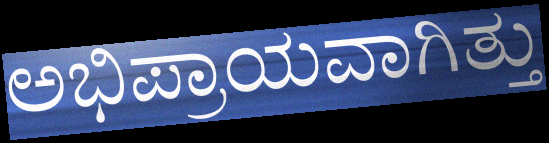
ಅಭಿಪ್ರಾಯವಾಗಿತ್ತು